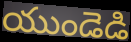
యుండెడి